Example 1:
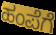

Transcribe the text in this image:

ಹಂಪೆಗೆ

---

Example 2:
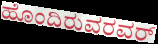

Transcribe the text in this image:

ಹೊಂದಿರುವರವರ್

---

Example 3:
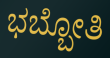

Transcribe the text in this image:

ಭಬ್ಬೋತಿ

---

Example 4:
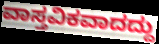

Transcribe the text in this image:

ವಾಸ್ತವಿಕವಾದದ್ದು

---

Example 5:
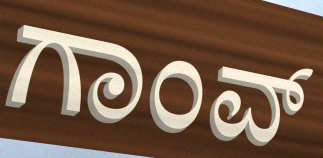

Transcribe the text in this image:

ಗಾಂವ್